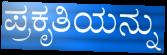
ಪ್ರಕೃತಿಯನ್ನು